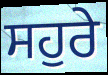
ਸਹੁਰੇ